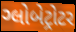
ગ્લોબેટ્રોટર